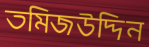
তমিজউদ্দিন